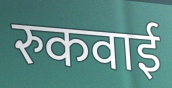
रुकवाई